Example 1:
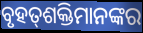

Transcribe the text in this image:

ବୃହତ୍‌ଶକ୍ତିମାନଙ୍କର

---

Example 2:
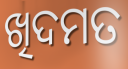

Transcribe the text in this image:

ଖିଦମତ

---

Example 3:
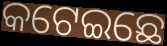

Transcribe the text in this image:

କଟେଇଛେ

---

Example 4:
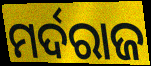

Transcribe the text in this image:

ମର୍ଦରାଜ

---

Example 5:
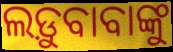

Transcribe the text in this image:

ଲଡ଼ୁବାବାଙ୍କୁ